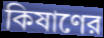
কিষাণের